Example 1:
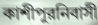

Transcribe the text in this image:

কাশীপুরনিবাসী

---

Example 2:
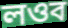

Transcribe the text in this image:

লওব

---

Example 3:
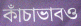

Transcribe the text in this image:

কাঁচাভাবও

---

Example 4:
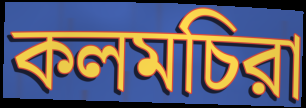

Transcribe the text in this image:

কলমচিরা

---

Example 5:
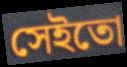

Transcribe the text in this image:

সেইতো